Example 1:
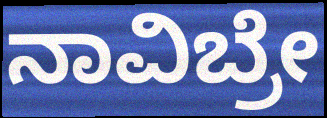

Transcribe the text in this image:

ನಾವಿಬ್ರೇ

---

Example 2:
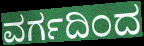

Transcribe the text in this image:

ವರ್ಗದಿಂದ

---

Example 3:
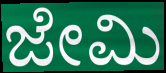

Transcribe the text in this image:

ಜೇಮಿ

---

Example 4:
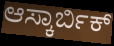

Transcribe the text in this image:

ಆಸ್ಕಾರ್ಬಿಕ್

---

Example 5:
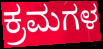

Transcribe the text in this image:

ಕ್ರಮಗಳ